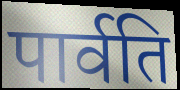
पार्वति